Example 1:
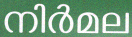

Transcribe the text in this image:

നിർമല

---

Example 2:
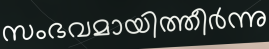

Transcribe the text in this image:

സംഭവമായിത്തീർന്നു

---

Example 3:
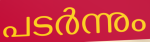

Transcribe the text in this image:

പടർന്നും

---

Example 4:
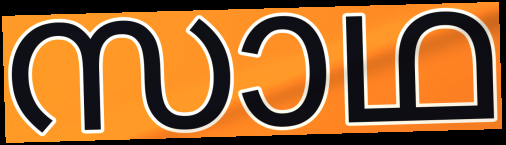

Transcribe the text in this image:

സാഥ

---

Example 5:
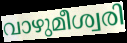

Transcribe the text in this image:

വാഴുമീശ്വരി